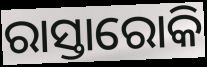
ରାସ୍ତାରୋକି